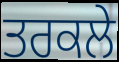
ਤਰਕਲੇ